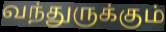
வந்துருக்கும்